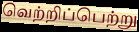
வெற்றிப்பெற்று